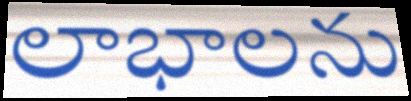
లాభాలను